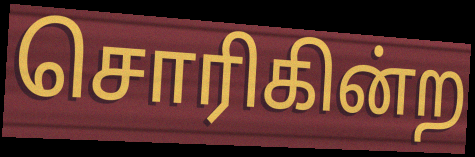
சொரிகின்ற